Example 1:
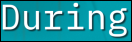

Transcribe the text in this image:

During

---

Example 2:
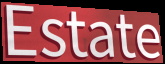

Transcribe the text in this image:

Estate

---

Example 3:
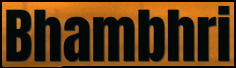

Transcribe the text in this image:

Bhambhri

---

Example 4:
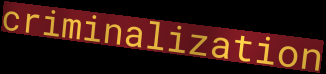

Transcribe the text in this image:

criminalization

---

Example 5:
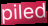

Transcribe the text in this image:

piled